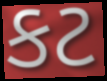
કટ